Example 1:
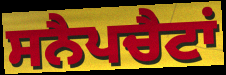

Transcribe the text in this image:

ਸਨੈਪਚੈਟਾਂ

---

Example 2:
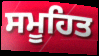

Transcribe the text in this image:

ਸਮੂਹਿਤ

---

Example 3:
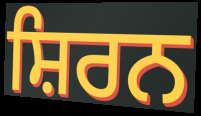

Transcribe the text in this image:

ਸ਼ਿਰਨ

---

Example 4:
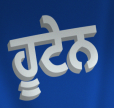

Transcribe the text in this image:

ਹੂਟੇਨ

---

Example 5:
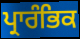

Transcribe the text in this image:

ਪ੍ਰਾਰੰਭਿਕ